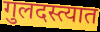
गुलदस्त्यात